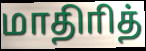
மாதிரித்